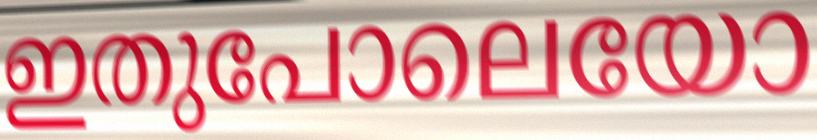
ഇതുപോലെയോ